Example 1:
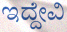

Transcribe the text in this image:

ಇದ್ದೇವಿ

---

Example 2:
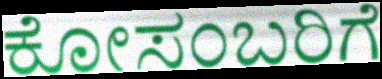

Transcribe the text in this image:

ಕೋಸಂಬರಿಗೆ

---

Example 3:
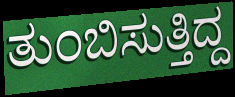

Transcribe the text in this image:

ತುಂಬಿಸುತ್ತಿದ್ದ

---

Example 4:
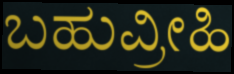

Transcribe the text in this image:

ಬಹುವ್ರೀಹಿ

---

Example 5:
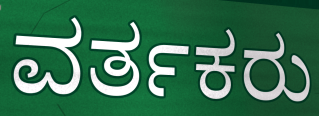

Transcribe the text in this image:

ವರ್ತಕರು